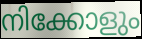
നിക്കോളും